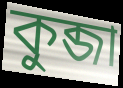
কুব্জা